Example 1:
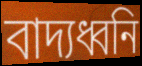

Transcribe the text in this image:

বাদ্যধ্বনি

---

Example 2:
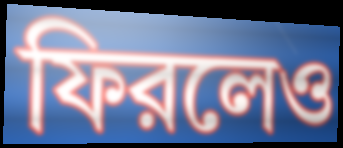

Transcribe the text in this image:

ফিরলেও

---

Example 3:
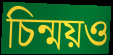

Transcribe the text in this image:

চিন্ময়ও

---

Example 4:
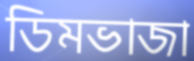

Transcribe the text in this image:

ডিমভাজা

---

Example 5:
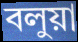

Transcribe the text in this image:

বলুয়া